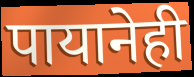
पायानेही